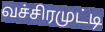
வச்சிரமுட்டி